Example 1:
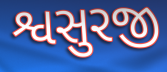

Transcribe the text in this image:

શ્વસુરજી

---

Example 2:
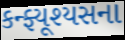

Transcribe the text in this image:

કન્ફ્યૂશ્યસના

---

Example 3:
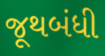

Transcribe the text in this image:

જૂથબંધી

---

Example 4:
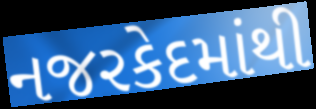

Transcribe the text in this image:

નજરકેદમાંથી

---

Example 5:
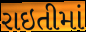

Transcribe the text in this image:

રાઇતીમાં